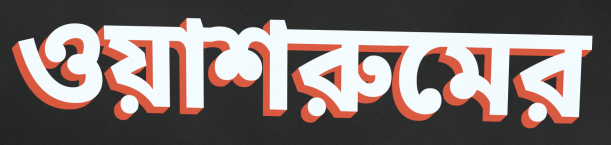
ওয়াশরুমের